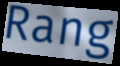
Rang